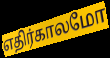
எதிர்காலமோ